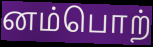
னம்பொற்